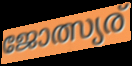
ജോത്സ്യര്